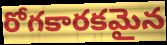
రోగకారకమైన